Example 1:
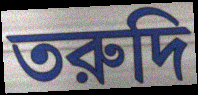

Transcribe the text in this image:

তরুদি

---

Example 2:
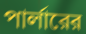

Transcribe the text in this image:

পার্লারের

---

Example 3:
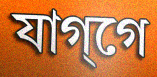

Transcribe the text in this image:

যাগ্‌গে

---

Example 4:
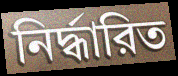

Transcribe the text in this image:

নির্দ্ধারিত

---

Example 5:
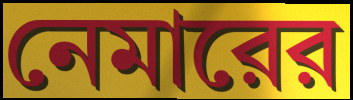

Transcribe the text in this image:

নেমারের